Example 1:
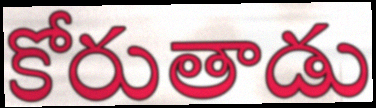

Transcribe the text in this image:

కోరుతాడు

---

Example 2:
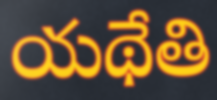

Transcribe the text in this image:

యథేతి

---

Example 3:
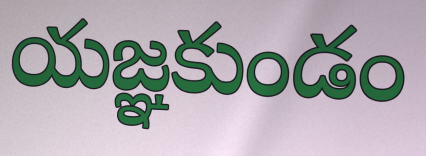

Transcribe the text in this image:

యజ్ఞకుండం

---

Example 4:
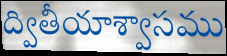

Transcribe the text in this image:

ద్వితీయాశ్వాసము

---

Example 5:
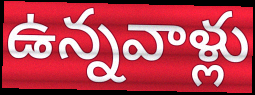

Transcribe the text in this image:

ఉన్నవాళ్లు